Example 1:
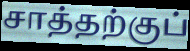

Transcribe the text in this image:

சாத்தற்குப்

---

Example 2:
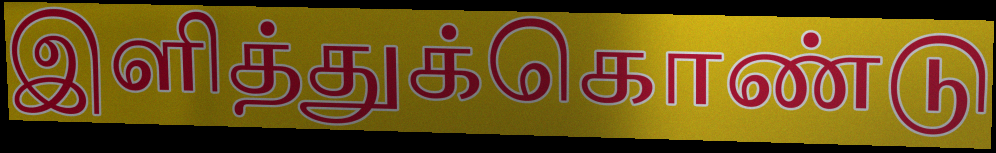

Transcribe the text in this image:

இளித்துக்கொண்டு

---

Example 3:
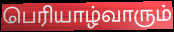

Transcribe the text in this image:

பெரியாழ்வாரும்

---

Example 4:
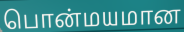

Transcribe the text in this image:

பொன்மயமான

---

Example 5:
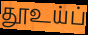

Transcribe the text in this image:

தூஉய்ப்